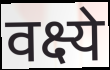
वक्ष्ये